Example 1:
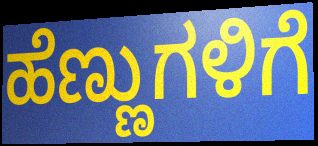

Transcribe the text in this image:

ಹೆಣ್ಣುಗಳಿಗೆ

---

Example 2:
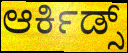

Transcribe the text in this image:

ಆರ್ಕಿಡ್ಸ್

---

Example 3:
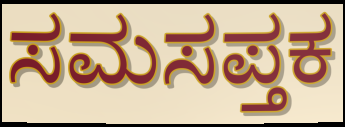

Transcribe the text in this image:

ಸಮಸಪ್ತಕ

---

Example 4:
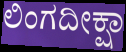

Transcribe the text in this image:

ಲಿಂಗದೀಕ್ಷಾ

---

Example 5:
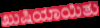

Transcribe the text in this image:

ಖುಷಿಯಾಯಿತು